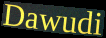
Dawudi